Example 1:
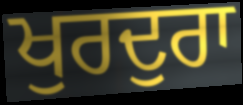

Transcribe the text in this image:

ਖੁਰਦੁਰਾ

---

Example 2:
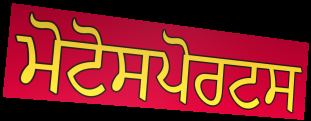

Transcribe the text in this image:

ਮੋਟੋਸਪੋਰਟਸ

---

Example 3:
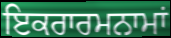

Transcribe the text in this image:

ਇਕਰਾਰਮਨਾਮਾਂ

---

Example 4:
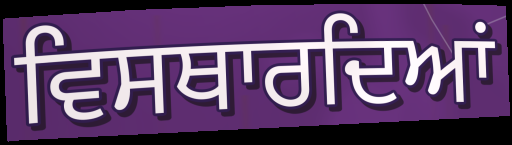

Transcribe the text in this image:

ਵਿਸਥਾਰਦਿਆਂ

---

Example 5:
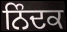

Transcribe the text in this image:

ਨਿੰਦਕ